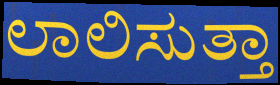
ಲಾಲಿಸುತ್ತಾ